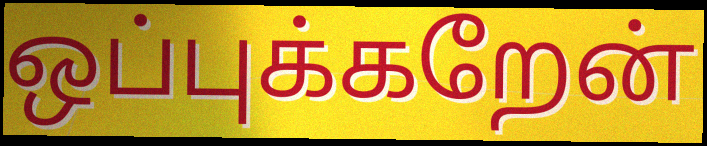
ஒப்புக்கறேன்